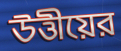
উত্তীয়ের